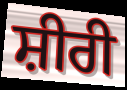
ਸ਼ੀਰੀ